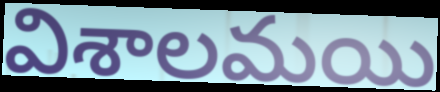
విశాలమయి